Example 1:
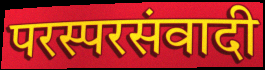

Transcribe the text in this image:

परस्परसंवादी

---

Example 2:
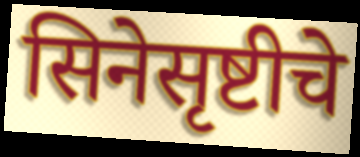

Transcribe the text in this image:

सिनेसृष्टीचे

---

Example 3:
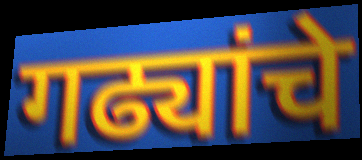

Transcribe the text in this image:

गढ्यांचे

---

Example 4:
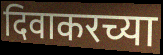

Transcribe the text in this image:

दिवाकरच्या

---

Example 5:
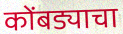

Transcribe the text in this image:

कोंबड्याचा